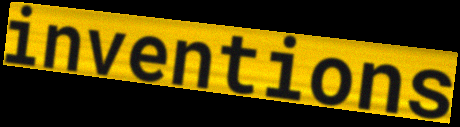
inventions